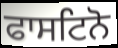
ਫਾਸਟਿਨੋ